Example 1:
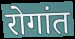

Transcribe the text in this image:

रोगांत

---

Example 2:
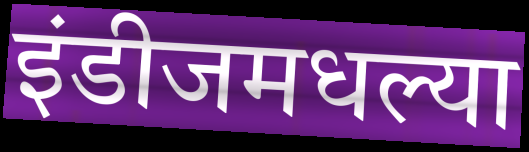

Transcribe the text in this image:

इंडीजमधल्या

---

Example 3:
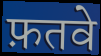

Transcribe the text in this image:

फ़तवे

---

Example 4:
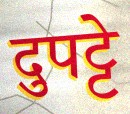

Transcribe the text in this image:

दुपट्टे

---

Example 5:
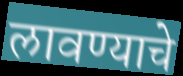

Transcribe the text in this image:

लावण्याचे